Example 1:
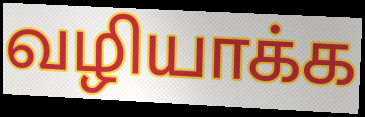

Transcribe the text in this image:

வழியாக்க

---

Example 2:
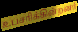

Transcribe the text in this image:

உபசரிக்கின்றனர்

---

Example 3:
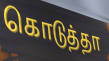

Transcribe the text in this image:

கொடுத்தா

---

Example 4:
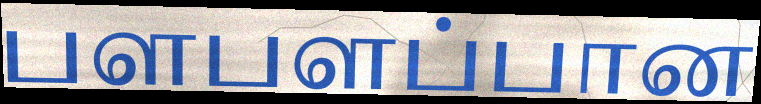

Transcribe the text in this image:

பளபளப்பான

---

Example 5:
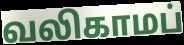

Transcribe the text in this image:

வலிகாமப்